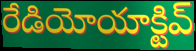
రేడియోయాక్టివ్